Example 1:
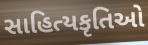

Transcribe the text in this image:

સાહિત્યકૃતિઓ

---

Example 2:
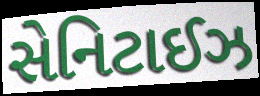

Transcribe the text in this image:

સેનિટાઈઝ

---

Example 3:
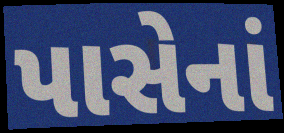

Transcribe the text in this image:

પાસેનાં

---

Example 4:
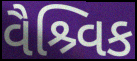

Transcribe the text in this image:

વૈશ્ર્વિક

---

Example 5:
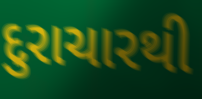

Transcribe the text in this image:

દુરાચારથી